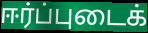
ஈர்ப்புடைக்